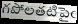
గపోలతటిపైఁ